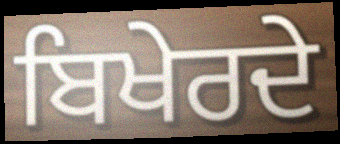
ਬਿਖੇਰਦੇ